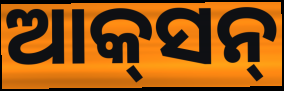
ଆକ୍‍ସନ୍